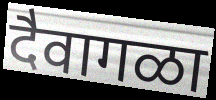
दैवागळा